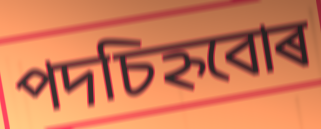
পদচিহ্নবোৰ